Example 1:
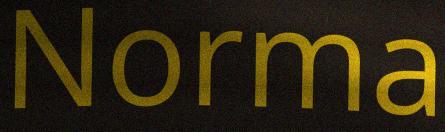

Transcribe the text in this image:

Norma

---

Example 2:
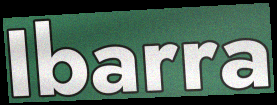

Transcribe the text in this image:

Ibarra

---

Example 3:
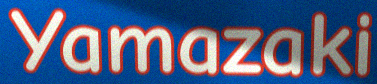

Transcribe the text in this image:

Yamazaki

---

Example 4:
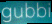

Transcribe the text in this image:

gubbi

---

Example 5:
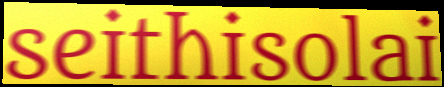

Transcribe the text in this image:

seithisolai